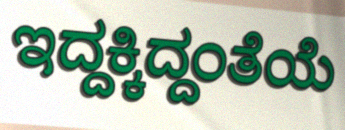
ಇದ್ದಕ್ಕಿದ್ದಂತೆಯೆ